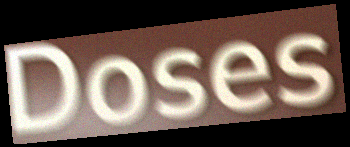
Doses